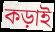
কড়াই